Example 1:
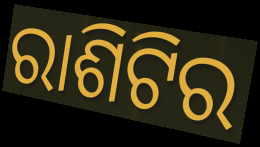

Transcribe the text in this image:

ରାଶିଟିର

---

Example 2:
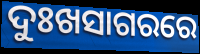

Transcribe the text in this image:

ଦୁଃଖସାଗରରେ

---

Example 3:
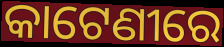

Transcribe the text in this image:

କାଟେଣୀରେ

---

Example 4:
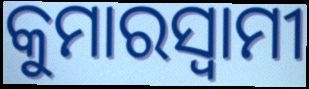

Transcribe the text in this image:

କୁମାରସ୍ୱାମୀ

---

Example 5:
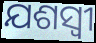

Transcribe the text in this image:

ଯଶସ୍ବୀ